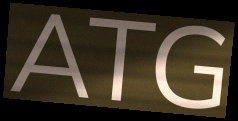
ATG